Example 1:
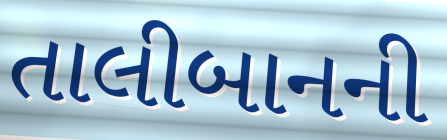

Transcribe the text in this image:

તાલીબાનની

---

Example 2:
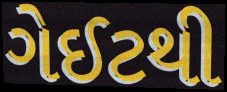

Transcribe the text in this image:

ગેઈટથી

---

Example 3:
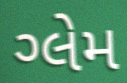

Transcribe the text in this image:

ગ્લેમ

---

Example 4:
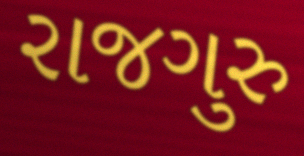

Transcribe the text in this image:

રાજગુરુ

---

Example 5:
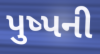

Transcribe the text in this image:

પુષ્પની